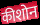
कीशोन